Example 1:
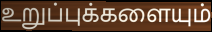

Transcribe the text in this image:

உறுப்புக்களையும்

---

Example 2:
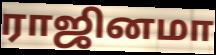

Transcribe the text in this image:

ராஜினமா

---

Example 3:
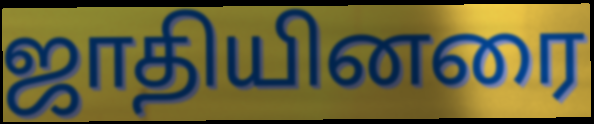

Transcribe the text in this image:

ஜாதியினரை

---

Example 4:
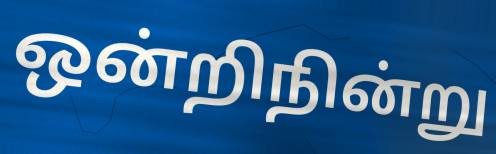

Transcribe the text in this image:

ஒன்றிநின்று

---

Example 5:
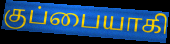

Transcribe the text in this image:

குப்பையாகி